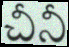
చీనీ